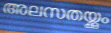
അലസതയ്ക്കും